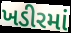
ખડીરમાં